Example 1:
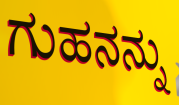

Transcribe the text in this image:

ಗುಹನನ್ನು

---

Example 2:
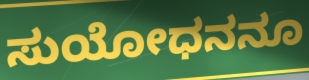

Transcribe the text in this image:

ಸುಯೋಧನನೂ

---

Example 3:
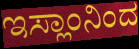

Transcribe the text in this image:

ಇಸ್ಲಾಂನಿಂದ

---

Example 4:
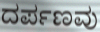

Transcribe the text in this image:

ದರ್ಪಣವು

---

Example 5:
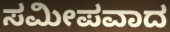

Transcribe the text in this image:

ಸಮೀಪವಾದ